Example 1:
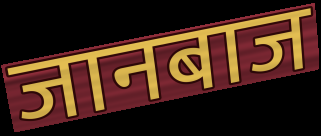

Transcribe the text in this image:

जानबाज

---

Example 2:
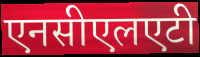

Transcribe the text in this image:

एनसीएलएटी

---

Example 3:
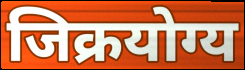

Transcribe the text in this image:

जिक्रयोग्य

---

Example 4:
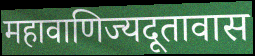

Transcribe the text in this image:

महावाणिज्यदूतावास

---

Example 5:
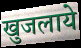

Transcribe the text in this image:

खुजलाये